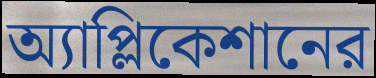
অ্যাপ্লিকেশানের